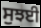
ਸੁਝਈ